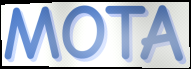
MOTA